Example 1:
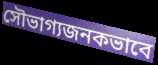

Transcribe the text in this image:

সৌভাগ্যজনকভাবে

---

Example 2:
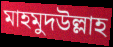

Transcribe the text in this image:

মাহমুদউল্লাহ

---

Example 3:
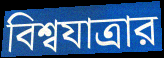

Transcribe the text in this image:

বিশ্বযাত্রার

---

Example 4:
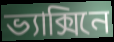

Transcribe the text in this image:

ভ্যাক্সিনে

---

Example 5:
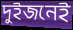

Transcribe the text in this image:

দুইজনেই